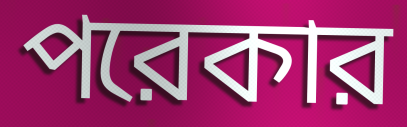
পরেকার